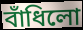
বাঁধিলো